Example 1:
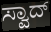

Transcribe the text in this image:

ಸ್ವಾದ್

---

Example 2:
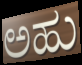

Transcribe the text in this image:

ಅಹು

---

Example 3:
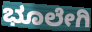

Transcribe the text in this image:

ಭೂಲೇಗಿ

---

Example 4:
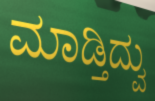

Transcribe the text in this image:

ಮಾಡ್ತಿದ್ವು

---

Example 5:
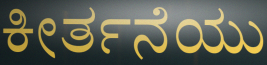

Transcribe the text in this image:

ಕೀರ್ತನೆಯು